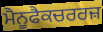
ਮੈਨੂਫੈਕਚਰਰਜ਼